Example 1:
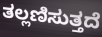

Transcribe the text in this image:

ತಲ್ಲಣಿಸುತ್ತದೆ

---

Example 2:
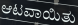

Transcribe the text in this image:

ಆಟವಾಯಿತು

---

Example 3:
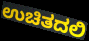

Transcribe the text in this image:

ಉಚಿತದಲಿ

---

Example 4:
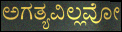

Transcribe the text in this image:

ಅಗತ್ಯವಿಲ್ಲವೋ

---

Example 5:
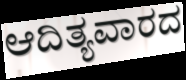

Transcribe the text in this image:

ಆದಿತ್ಯವಾರದ